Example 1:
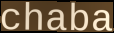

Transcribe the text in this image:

chaba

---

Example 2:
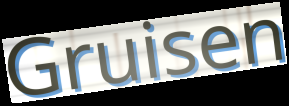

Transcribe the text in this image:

Gruisen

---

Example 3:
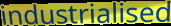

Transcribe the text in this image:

industrialised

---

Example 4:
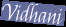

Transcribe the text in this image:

Vidhani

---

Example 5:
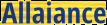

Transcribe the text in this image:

Allaiance